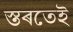
স্তৰতেই